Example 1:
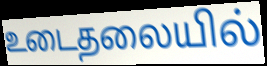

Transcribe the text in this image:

உடைதலையில்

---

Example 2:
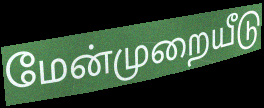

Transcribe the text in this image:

மேன்முறையீடு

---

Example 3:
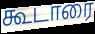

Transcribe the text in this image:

கூடாரை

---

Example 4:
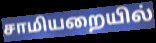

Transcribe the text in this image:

சாமியறையில்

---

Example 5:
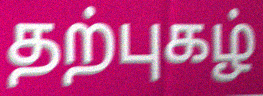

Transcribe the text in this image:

தற்புகழ்